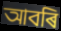
আবৰি